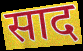
साद